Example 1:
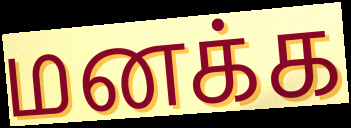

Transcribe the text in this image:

மனக்க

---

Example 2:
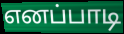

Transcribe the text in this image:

எனப்பாடி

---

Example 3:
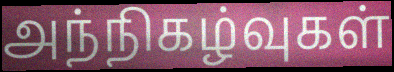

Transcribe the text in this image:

அந்நிகழ்வுகள்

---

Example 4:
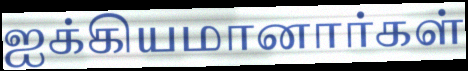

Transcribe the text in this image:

ஐக்கியமானார்கள்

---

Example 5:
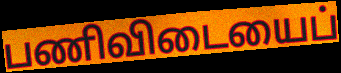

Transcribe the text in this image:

பணிவிடையைப்